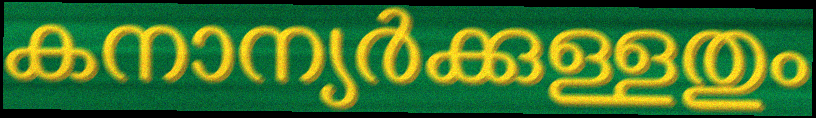
കനാന്യർക്കുള്ളതും